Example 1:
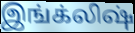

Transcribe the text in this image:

இங்க்லிஷ்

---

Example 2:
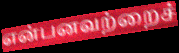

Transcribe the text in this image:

என்பனவற்றைச்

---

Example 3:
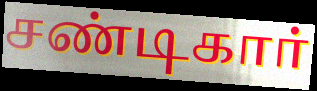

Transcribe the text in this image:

சண்டிகார்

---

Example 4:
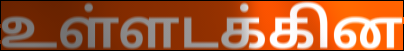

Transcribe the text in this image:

உள்ளடக்கின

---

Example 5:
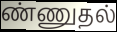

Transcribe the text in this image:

ண்ணுதல்